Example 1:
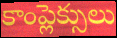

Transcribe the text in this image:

కాంప్లెక్సులు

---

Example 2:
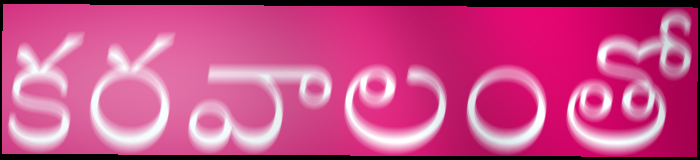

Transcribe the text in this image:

కరవాలంతో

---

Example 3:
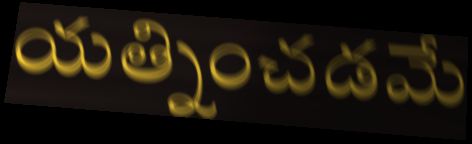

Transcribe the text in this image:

యత్నించడమే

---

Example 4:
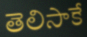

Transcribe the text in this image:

తెలిసాకే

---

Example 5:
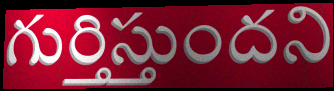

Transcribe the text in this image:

గుర్తిస్తుందని